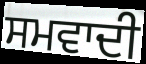
ਸਮਵਾਦੀ